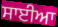
ਸਾਈਆ